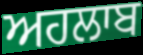
ਅਹਲਾਬ